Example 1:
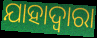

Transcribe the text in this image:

ଯାହାଦ୍ୱାରା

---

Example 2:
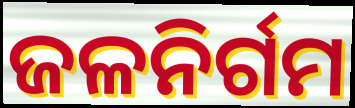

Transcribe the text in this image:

ଜଳନିର୍ଗମ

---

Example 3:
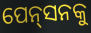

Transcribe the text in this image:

ପେନ୍‌ସନକୁ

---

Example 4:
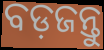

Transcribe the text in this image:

ବଡ଼ଜନ୍ତୁ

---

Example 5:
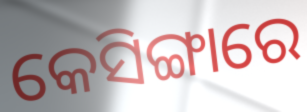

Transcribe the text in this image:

କେସିଙ୍ଗାରେ